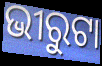
ଭୀରୁଟା